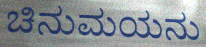
ಚಿನುಮಯನು